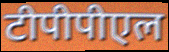
टीपीपीएल